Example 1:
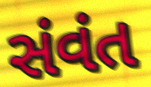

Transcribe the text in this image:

સંવંત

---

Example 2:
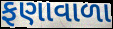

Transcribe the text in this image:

ફણાવાળા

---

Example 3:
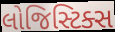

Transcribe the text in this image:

લોજિસ્ટિક્સ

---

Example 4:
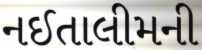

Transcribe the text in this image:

નઈતાલીમની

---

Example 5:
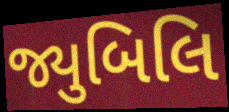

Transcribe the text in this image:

જ્યુબિલિ